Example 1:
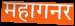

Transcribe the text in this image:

महागनर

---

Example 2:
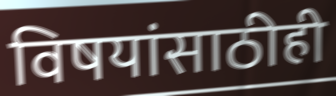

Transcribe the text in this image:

विषयांसाठीही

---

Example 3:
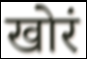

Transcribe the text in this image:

खोरं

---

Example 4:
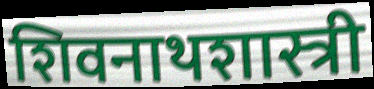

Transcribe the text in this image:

शिवनाथशास्त्री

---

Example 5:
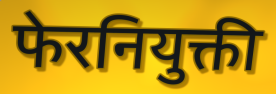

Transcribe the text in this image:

फेरनियुक्ती